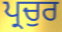
ਪ੍ਰਚੁਰ